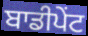
ਬਾਡੀਪੇਂਟ